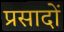
प्रसादों